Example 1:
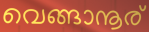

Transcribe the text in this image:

വെങ്ങാനൂര്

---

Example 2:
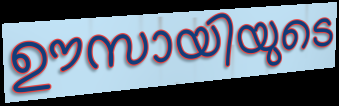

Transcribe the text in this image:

ഊസായിയുടെ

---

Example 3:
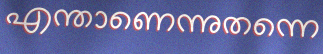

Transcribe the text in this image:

എന്താണെന്നുതന്നെ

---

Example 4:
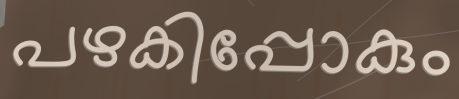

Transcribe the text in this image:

പഴകിപ്പോകും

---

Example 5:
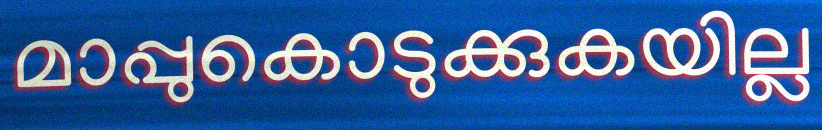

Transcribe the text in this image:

മാപ്പുകൊടുക്കുകയില്ല